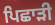
ਪਿਛਾੜੀ